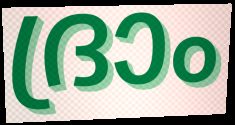
ദ്രാം